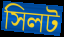
সিলট